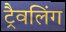
ट्रैवलिंग